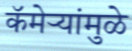
कॅमेऱ्यांमुळे